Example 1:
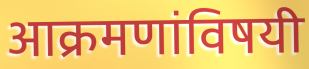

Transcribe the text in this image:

आक्रमणांविषयी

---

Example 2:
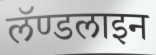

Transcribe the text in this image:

लॅण्डलाइन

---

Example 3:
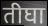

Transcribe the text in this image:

तीघा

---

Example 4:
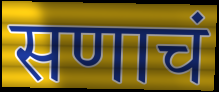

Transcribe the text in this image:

सणाचं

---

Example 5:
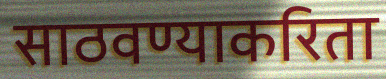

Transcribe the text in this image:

साठवण्याकरिता